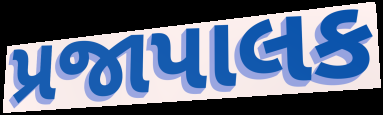
પ્રજાપાલક